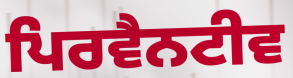
ਪਿਰਵੈਨਟੀਵ